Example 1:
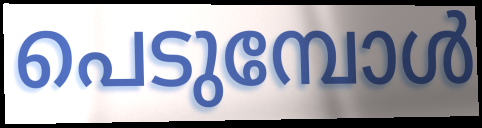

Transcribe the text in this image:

പെടുമ്പോൾ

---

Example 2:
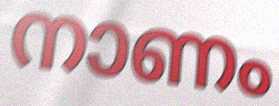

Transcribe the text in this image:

നാണം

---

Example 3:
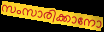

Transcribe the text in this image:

സംസാരിക്കാനോ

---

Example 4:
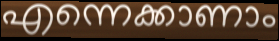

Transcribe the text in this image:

എന്നെക്കാണാം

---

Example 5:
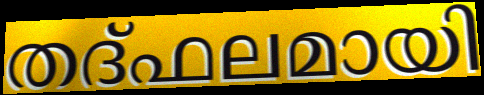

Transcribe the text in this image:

തദ്ഫലമായി